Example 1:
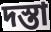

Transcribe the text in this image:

দস্তা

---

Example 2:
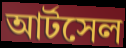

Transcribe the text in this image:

আর্টসেল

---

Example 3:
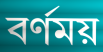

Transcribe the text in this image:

বর্ণময়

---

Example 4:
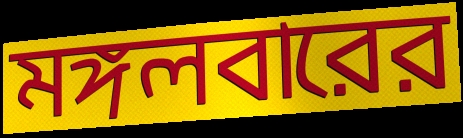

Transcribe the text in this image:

মঙ্গলবারের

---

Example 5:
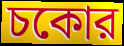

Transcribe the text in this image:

চকোর